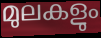
മുലകളും